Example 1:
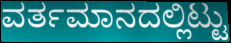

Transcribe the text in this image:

ವರ್ತಮಾನದಲ್ಲಿಟ್ಟು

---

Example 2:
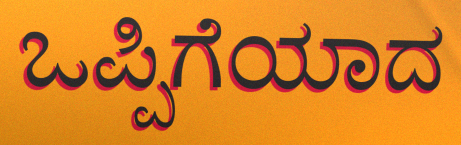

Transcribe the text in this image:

ಒಪ್ಪಿಗೆಯಾದ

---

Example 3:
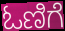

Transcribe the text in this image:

ಓಣಿಗೆ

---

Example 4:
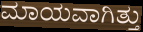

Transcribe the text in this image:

ಮಾಯವಾಗಿತ್ತು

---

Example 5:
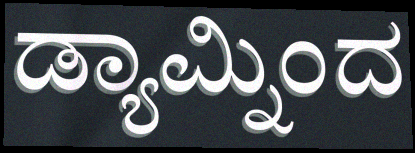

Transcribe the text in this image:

ಡ್ಯಾಮ್ನಿಂದ